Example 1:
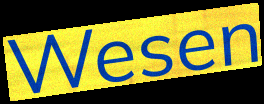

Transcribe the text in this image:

Wesen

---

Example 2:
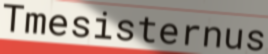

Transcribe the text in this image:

Tmesisternus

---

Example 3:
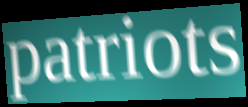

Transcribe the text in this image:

patriots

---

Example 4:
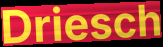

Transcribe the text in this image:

Driesch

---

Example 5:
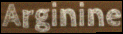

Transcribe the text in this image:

Arginine